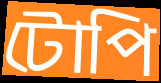
টোপি